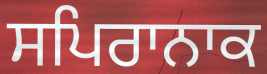
ਸਪਿਰਾਨਾਕ